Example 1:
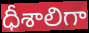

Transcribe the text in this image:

ధీశాలిగా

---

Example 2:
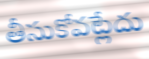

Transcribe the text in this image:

తీసుకోవట్లేదు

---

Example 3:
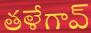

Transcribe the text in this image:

తళేగావ్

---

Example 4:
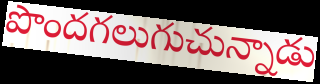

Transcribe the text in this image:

పొందగలుగుచున్నాడు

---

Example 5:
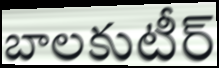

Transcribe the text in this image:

బాలకుటీర్